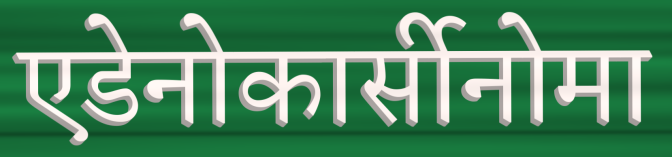
एडेनोकार्सीनोमा